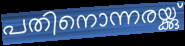
പതിനൊന്നരയ്ക്കു്